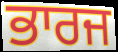
ਭਾਰਜ